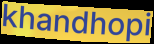
khandhopi